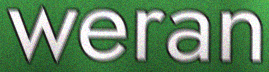
weran